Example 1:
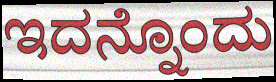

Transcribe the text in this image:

ಇದನ್ನೊಂದು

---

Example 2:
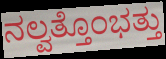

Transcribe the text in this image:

ನಲ್ವತ್ತೊಂಭತ್ತು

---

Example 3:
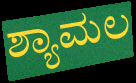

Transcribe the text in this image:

ಶ್ಯಾಮಲ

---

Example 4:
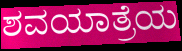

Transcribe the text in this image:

ಶವಯಾತ್ರೆಯ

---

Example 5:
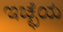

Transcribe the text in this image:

ಇಚ್ಛೆಯ